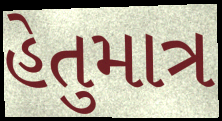
હેતુમાત્ર